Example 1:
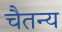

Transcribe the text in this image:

चैतन्य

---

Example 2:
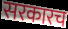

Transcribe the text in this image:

सरकारच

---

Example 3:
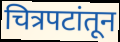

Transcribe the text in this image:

चित्रपटांतून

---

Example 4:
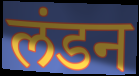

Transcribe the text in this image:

लंडन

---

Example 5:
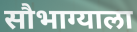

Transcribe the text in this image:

सौभाग्याला